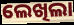
ଲେଖିଲା